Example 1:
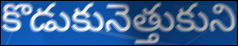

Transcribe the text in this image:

కొడుకునెత్తుకుని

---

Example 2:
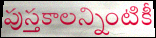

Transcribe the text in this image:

పుస్తకాలన్నింటికీ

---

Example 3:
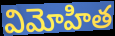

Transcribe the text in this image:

విమోహిత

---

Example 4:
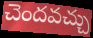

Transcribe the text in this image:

చెందవచ్చు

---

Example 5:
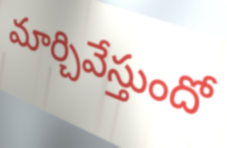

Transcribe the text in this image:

మార్చివేస్తుందో